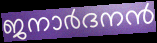
ജനാർദനൻ